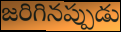
జరిగినప్పుడు